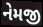
નેમજી